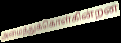
அமைத்துக்கொள்கின்றன